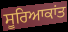
ਸੂਰਿਆਕਾਂਤ